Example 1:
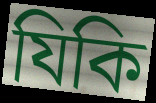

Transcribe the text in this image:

যিকি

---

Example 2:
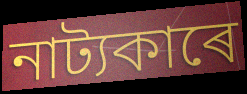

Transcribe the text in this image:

নাট্যকাৰে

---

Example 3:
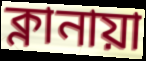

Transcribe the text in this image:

ক্নানায়া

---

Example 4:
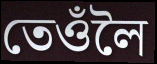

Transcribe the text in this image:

তেওঁলৈ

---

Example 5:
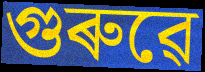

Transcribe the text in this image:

গুৰুৱে